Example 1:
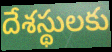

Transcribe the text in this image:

దేశస్థులకు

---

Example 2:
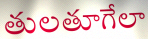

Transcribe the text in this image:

తులతూగేలా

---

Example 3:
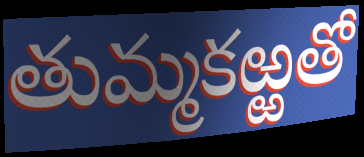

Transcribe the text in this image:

తుమ్మకఱ్ఱతో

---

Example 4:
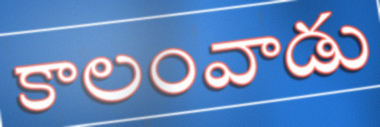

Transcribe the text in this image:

కాలంవాడు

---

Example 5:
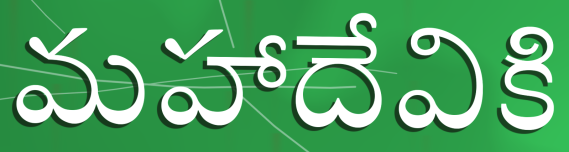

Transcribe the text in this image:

మహాదేవికి